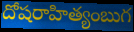
దోషరాహిత్యంబుగ